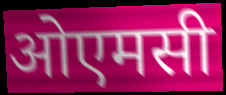
ओएमसी